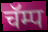
चॅम्प